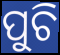
ପୁଚି